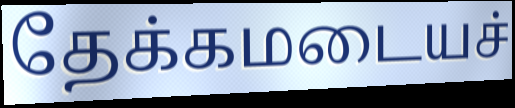
தேக்கமடையச்